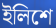
ইলিশে